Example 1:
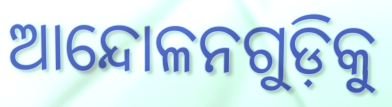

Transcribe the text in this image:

ଆନ୍ଦୋଳନଗୁଡ଼ିକୁ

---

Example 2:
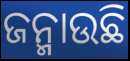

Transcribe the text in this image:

ଜନ୍ମାଉଛି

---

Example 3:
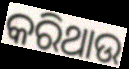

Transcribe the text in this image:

କରିଥାଉ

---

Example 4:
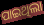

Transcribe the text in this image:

ପାଇଥିଲା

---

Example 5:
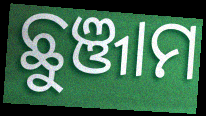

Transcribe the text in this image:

ଛୁଞ୍ଜାମ